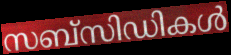
സബ്സിഡികൾ